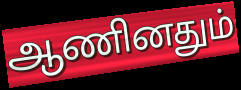
ஆணினதும்